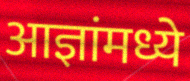
आज्ञांमध्ये